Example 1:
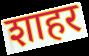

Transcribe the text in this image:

शाहर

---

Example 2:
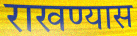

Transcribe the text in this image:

राखण्यास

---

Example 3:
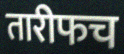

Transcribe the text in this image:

तारीफच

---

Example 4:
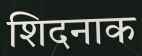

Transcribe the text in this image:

शिदनाक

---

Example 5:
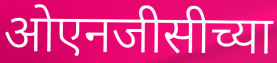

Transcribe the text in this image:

ओएनजीसीच्या